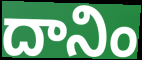
దానిం